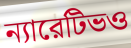
ন্যারেটিভও